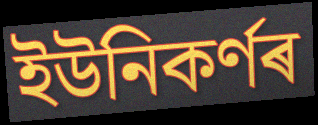
ইউনিকৰ্ণৰ